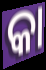
କା